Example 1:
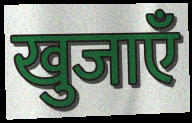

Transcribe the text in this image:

खुजाएँ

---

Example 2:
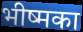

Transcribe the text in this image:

भीष्मका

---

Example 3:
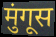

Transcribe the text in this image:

मुंगूस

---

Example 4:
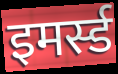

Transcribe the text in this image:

इमर्स्ड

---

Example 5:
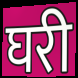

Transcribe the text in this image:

घरी